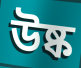
উষ্ক